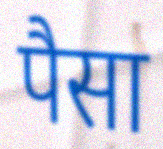
पैसा